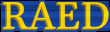
RAED